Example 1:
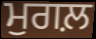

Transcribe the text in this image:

ਮੁਗਲ਼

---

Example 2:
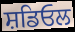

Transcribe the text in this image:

ਸ਼ਡਿਓਲ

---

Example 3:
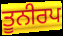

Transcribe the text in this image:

ਤੂਨੀਰਪ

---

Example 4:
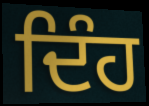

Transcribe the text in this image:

ਦਿੰਹ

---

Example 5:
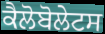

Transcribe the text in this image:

ਕੈਲੋਬੋਲੇਟਸ